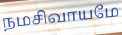
நமசிவாயமே